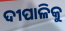
ଦୀପାଳିକୁ